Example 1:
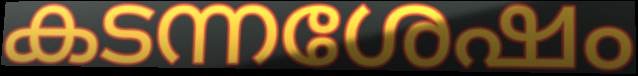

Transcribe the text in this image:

കടന്നശേഷം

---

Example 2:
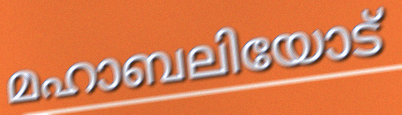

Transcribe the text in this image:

മഹാബലിയോട്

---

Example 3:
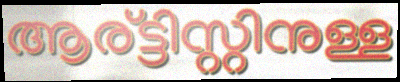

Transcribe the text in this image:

ആര്ട്ടിസ്റ്റിനുള്ള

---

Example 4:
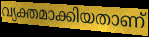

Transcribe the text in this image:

വ്യക്തമാക്കിയതാണ്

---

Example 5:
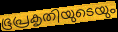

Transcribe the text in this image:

ഭൂപ്രകൃതിയുടെയും